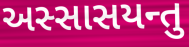
અસ્સાસયન્તુ